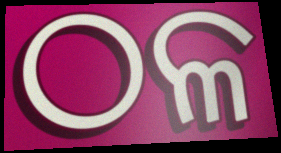
ଠଳ